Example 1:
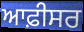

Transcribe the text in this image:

ਆਫ਼ੀਸਰ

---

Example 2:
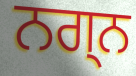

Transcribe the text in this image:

ਨਗ੍ਨ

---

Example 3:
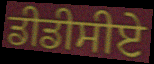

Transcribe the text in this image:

ਡੀਡੀਸੀਏ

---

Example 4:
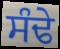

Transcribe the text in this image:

ਸੰਢੇ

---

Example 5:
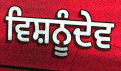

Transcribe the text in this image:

ਵਿਸ਼ਨੂੰਦੇਵ